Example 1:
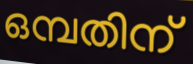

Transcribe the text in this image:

ഒമ്പതിന്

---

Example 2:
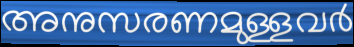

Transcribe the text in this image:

അനുസരണമുള്ളവർ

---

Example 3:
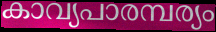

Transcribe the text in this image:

കാവ്യപാരമ്പര്യം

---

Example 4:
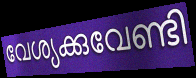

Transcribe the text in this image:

വേശ്യക്കുവേണ്ടി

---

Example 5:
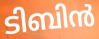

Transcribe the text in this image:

ടിബിൻ